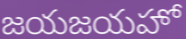
జయజయహో